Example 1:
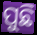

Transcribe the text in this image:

ପୁଛି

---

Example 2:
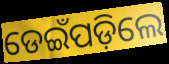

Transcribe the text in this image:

ଡେଇଁପଡ଼ିଲେ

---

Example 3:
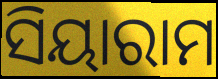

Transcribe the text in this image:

ସିୟାରାମ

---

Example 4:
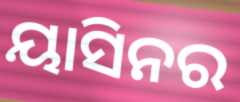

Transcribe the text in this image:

ୟାସିନର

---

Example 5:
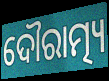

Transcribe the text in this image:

ଦୌରାତ୍ମ୍ୟ